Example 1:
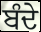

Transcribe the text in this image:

ਬੰਦੇ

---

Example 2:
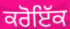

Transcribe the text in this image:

ਕਰੋਇੱਕ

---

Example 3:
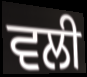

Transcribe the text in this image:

ਵਲੀ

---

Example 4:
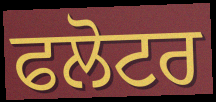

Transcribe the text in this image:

ਫਲੋਟਰ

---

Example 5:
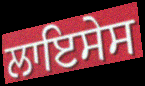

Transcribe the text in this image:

ਲਾਇਸੇਸ